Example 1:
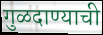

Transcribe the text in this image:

गुळदाण्याची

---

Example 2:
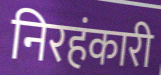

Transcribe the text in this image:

निरहंकारी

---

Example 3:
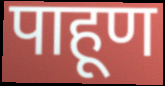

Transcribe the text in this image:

पाहूण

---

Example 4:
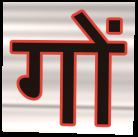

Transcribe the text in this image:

गों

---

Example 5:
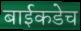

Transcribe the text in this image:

बाईकडेच